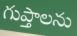
గుప్తాలను